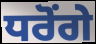
ਧਰੋਂਗੇ